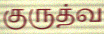
குருத்வ